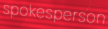
spokesperson